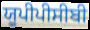
ਯੂਪੀਪੀਸੀਬੀ